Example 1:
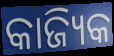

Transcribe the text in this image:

କାଜ୍ୟିକ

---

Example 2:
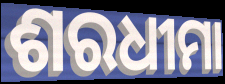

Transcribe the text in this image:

ଶରଧୀମା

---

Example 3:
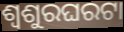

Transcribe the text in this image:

ଶ୍ୱଶୁରଘରଟା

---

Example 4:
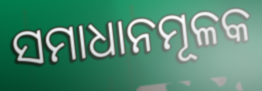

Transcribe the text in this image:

ସମାଧାନମୂଳକ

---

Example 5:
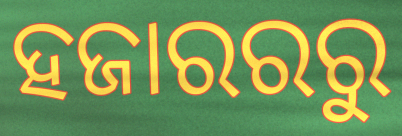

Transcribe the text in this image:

ହଜାରରରୁ